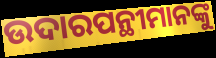
ଉଦାରପନ୍ଥୀମାନଙ୍କୁ